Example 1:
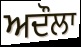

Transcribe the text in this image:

ਅਦੌਲਾ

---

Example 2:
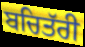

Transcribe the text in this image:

ਬਚਿਤੱਰੀ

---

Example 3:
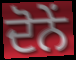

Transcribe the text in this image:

ਦੋਨੇਂ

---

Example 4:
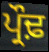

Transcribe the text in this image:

ਪ੍ਰੌਢ਼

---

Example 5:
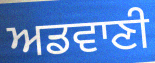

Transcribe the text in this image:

ਅਡਵਾਣੀ